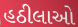
હઠીલાઓ